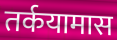
तर्कयामास